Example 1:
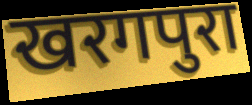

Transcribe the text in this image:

खरगपुरा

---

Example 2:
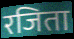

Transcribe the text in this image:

रजिता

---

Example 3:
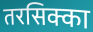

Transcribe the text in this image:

तरसिक्का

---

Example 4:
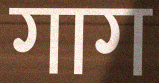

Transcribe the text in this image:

गाग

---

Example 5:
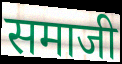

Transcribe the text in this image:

समाजी